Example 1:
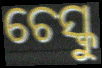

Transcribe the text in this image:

ଚେସ୍କୁ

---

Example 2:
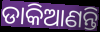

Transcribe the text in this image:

ଡାକିଆଣନ୍ତି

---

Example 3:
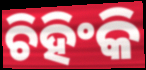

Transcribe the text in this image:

ଚିହିଂକି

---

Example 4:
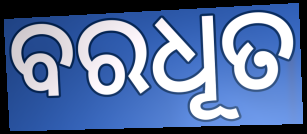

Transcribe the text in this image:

ବରଧୂତ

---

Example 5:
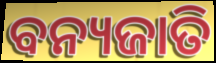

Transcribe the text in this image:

ବନ୍ୟଜାତି